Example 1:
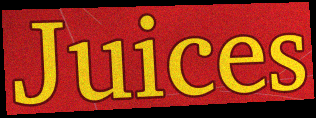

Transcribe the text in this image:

Juices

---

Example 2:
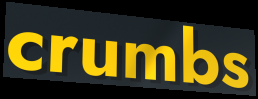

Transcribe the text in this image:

crumbs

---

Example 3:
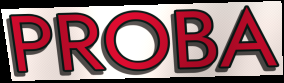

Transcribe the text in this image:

PROBA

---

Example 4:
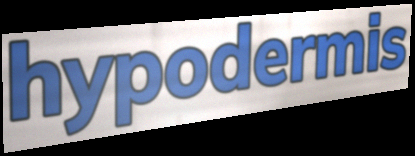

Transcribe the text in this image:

hypodermis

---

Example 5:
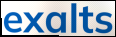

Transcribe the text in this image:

exalts